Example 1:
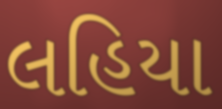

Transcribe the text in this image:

લહિયા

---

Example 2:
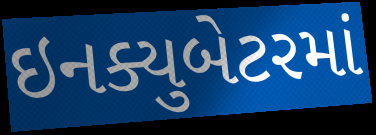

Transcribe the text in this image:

ઇનક્યુબેટરમાં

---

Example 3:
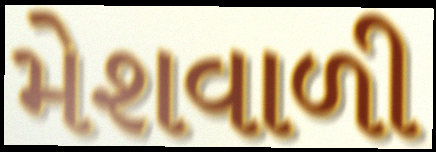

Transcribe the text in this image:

મેશવાળી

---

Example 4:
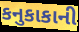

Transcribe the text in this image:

કનુકાકાની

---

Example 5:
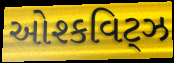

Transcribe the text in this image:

ઓશ્કવિટ્ઝ